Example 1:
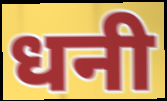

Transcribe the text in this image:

धनी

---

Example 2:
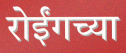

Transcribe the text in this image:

रोईंगच्या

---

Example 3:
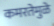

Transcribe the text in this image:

कमरतेमुळे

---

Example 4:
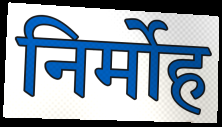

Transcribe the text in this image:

निर्मोह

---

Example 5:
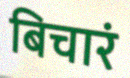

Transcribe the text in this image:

बिचारं